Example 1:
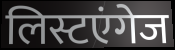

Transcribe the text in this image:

लिस्टएंगेज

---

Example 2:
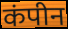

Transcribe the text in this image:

कंपीन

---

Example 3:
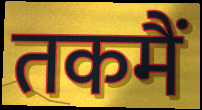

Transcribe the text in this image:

तकमैं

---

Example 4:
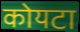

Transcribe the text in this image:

कोयटा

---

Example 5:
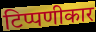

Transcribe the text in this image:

टिप्पणीकार